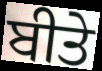
ਬੀਤੇ